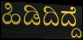
ಹಿಡಿದಿದ್ದೆ